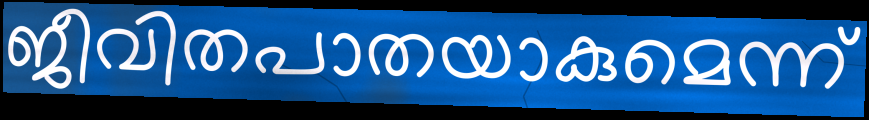
ജീവിതപാതയാകുമെന്ന്